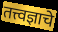
तत्त्वज्ञाचे